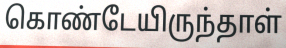
கொண்டேயிருந்தாள்